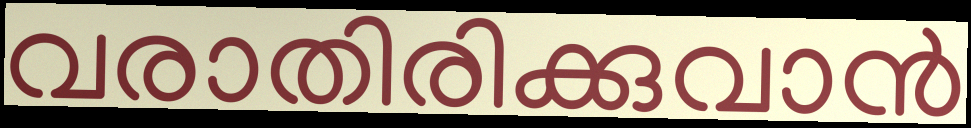
വരാതിരിക്കുവാൻ